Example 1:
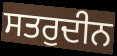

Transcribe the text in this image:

ਸਤਰੁਦੀਨ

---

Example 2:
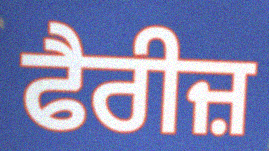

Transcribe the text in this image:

ਫੈਰੀਜ਼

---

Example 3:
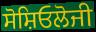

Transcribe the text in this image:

ਸੋਸ਼ਿਓਲੋਜੀ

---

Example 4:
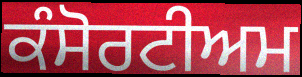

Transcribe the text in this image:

ਕੰਸੋਰਟੀਅਮ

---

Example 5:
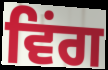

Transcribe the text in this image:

ਵਿਂਗ